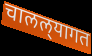
चालल्यागत